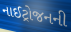
નાઈટ્રોજનની